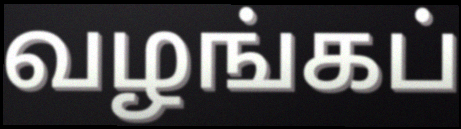
வழங்கப்